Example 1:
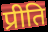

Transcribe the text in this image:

प्रीति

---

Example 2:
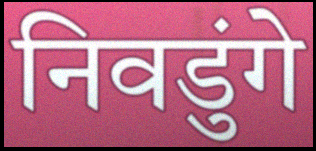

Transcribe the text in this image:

निवडुंगे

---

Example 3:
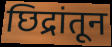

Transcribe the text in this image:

छिद्रांतून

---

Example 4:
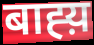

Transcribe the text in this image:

बाह्य़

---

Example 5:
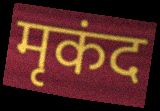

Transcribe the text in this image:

मृकंद